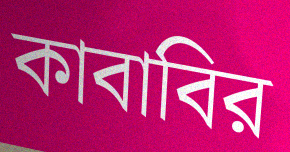
কাবাবির